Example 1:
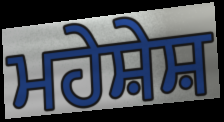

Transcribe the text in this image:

ਮਹੇਸ਼ੇਸ਼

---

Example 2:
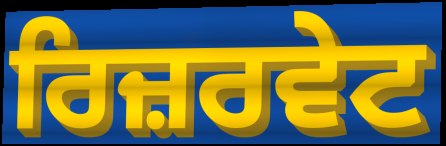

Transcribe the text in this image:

ਰਿਜ਼ਰਵੇਟ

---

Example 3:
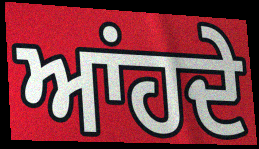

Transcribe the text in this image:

ਆਂਹਦੇ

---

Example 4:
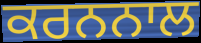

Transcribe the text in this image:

ਕਰਨਨਾਲ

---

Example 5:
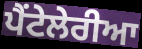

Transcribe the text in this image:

ਪੈਂਟੇਲੇਰੀਆ